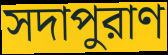
সদাপুরাণ